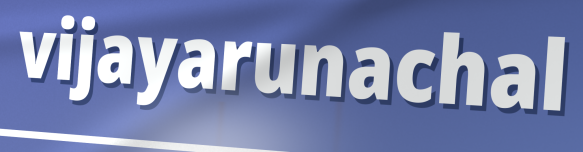
vijayarunachal